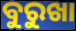
ବୁରୁଖା